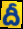
దీ